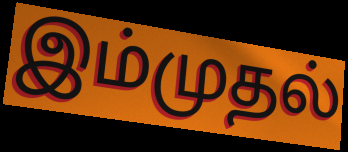
இம்முதல்